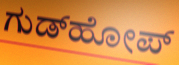
ಗುಡ್‌ಹೋಪ್